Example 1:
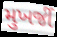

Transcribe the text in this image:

મુખર્જી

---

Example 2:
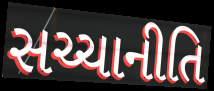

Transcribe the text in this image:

સચ્ચાનીતિ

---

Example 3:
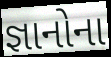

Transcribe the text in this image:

જ્ઞાનોના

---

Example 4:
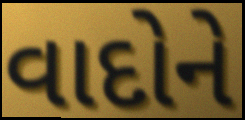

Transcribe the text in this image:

વાદોને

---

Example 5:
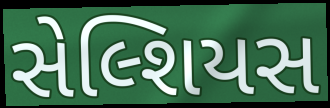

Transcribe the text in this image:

સેલ્શિયસ